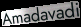
Amadavadi